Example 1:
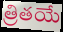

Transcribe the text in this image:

త్రితయే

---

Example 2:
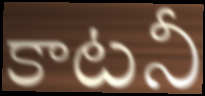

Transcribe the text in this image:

కాటనీ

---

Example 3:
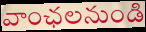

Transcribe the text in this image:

వాంఛలనుండి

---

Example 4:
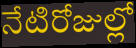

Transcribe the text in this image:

నేటిరోజుల్లో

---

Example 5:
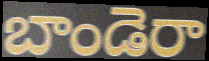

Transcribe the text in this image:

బాండెరా